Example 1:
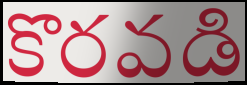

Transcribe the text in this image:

కొరవడి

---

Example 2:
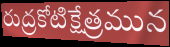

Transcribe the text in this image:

రుద్రకోటిక్షేత్రమున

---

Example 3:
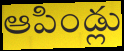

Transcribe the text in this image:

ఆపిండ్లు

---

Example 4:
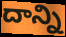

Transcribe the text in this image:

దాన్ని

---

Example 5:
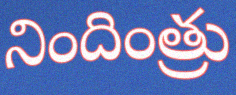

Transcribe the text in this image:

నిందింత్రు